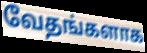
வேதங்களாக